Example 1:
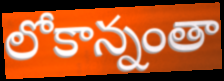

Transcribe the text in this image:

లోకాన్నంతా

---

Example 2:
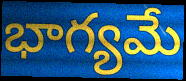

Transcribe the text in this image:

భాగ్యమే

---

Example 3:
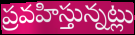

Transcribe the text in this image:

ప్రవహిస్తున్నట్లు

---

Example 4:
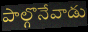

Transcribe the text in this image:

పాల్గొనేవాడు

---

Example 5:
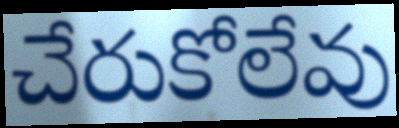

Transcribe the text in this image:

చేరుకోలేవు